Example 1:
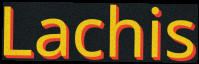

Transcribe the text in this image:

Lachis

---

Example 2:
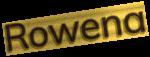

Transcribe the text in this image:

Rowena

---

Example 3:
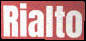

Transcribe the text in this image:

Rialto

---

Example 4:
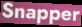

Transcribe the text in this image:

Snapper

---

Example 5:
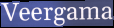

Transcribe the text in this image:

Veergama